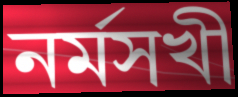
নর্মসখী